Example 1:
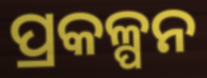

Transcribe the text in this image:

ପ୍ରକଳ୍ପନ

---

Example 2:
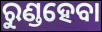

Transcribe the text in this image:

ରୁଣ୍ଡହେବା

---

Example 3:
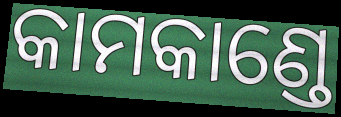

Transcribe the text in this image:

କାମକାଣ୍ଡେ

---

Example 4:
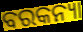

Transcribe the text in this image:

ବରକନ୍ୟା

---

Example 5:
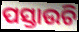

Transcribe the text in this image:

ପସ୍ତାଉଚି